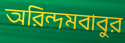
অরিন্দমবাবুর